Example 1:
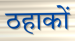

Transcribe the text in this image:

ठहाकों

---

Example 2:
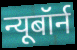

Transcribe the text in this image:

न्यूबॉर्न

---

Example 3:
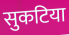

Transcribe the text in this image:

सुकटिया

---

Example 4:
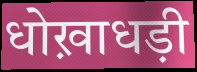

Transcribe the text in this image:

धोख़ाधड़ी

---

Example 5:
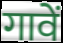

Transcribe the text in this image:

गावें